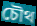
চৌথ